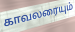
காவலரையும்